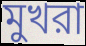
মুখরা